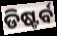
ଡିଷ୍ଟର୍ବ